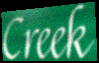
Creek